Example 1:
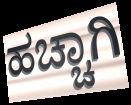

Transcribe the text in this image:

ಹಚ್ಚಾಗಿ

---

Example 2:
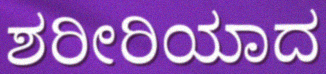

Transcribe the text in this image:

ಶರೀರಿಯಾದ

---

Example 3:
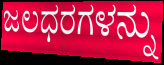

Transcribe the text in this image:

ಜಲಧರಗಳನ್ನು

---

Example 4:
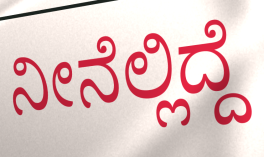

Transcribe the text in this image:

ನೀನೆಲ್ಲಿದ್ದೆ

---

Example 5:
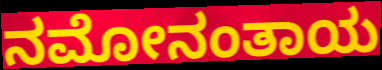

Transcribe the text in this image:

ನಮೋನಂತಾಯ